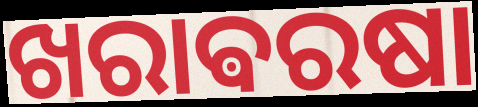
ଖରାଵରଷା